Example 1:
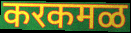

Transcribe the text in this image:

करकमळ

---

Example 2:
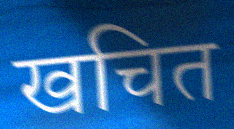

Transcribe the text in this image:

खचित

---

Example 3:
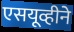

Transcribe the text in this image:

एसयूव्हीने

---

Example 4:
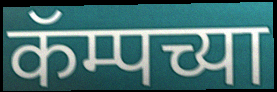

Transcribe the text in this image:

कॅम्पच्या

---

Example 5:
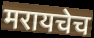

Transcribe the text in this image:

मरायचेच